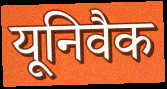
यूनिवैक